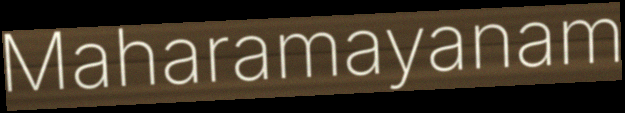
Maharamayanam